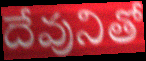
దేవునితో